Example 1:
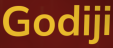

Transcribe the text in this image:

Godiji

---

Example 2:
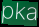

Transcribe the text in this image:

pka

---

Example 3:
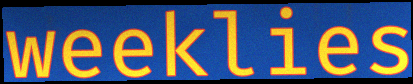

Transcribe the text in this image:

weeklies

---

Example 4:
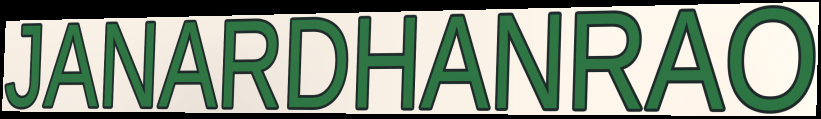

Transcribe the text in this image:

JANARDHANRAO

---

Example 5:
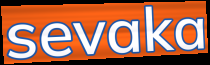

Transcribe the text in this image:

sevaka